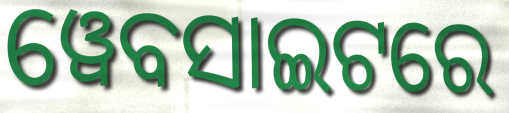
ୱେବସାଇଟରେ